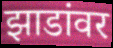
झाडांवर